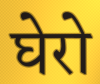
घेरो